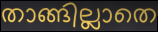
താങ്ങില്ലാതെ